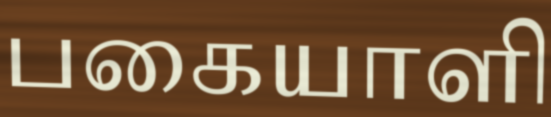
பகையாளி